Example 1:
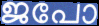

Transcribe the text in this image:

ജപോ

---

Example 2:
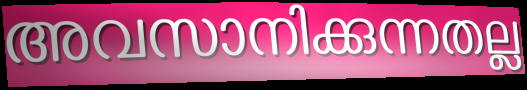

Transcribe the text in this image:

അവസാനിക്കുന്നതല്ല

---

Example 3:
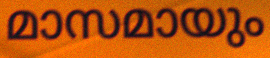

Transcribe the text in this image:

മാസമായും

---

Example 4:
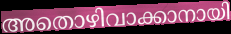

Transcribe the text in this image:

അതൊഴിവാക്കാനായി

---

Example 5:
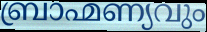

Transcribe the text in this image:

ബ്രാഹ്മണ്യവും